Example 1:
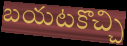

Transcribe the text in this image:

బయటకొచ్చి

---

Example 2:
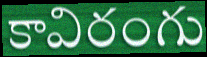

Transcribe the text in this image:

కావిరంగు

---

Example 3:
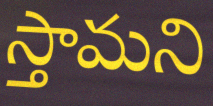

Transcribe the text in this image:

స్తామని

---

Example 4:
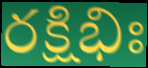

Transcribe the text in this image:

రక్షిభిః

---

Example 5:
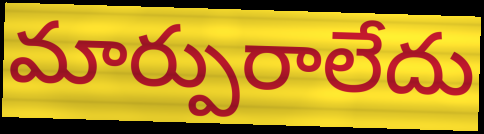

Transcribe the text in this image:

మార్పురాలేదు